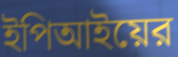
ইপিআইয়ের